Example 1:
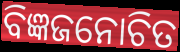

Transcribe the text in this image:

ବିଜ୍ଞଜନୋଚିତ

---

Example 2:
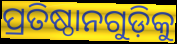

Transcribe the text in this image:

ପ୍ରତିଷ୍ଠାନଗୁଡ଼ିକୁ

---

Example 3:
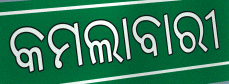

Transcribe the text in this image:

କମଲାବାରୀ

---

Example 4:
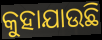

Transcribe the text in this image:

କୁହାଯାଉଛି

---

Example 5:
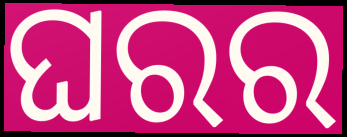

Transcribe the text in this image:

ଘରର